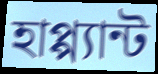
হাপ্প্যান্ট